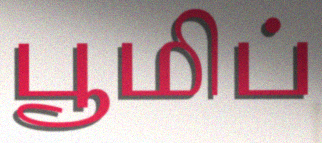
பூமிப்